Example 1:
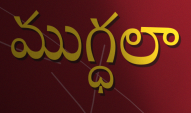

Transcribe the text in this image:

ముగ్ధలా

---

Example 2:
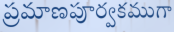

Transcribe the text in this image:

ప్రమాణపూర్వకముగా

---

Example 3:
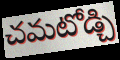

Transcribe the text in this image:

చమటోడ్చి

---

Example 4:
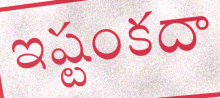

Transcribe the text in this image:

ఇష్టంకదా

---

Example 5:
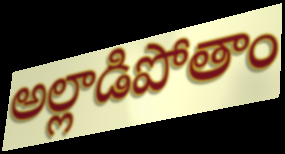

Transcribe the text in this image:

అల్లాడిపోతాం